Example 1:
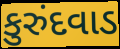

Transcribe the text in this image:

કુરુંદવાડ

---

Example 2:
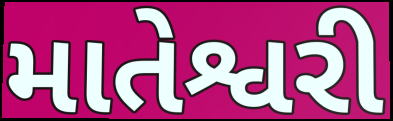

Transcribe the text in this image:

માતેશ્વરી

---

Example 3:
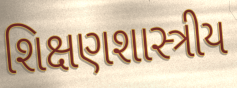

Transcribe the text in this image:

શિક્ષણશાસ્ત્રીય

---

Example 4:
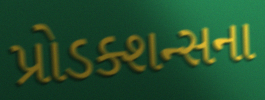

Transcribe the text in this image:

પ્રોડક્શન્સના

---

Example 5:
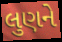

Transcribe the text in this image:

લુણને